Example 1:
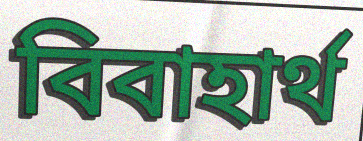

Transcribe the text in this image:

বিবাহার্থ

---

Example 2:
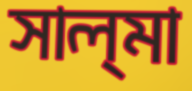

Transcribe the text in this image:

সাল্‌মা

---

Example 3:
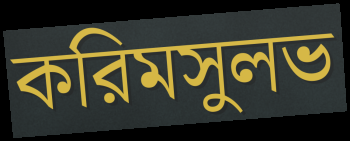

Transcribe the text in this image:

করিমসুলভ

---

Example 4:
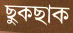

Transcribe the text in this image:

ছুকছাক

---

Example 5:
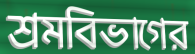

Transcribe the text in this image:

শ্রমবিভাগের